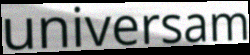
universam